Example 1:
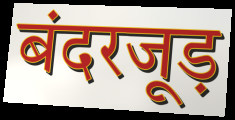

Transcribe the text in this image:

बंदरजूड़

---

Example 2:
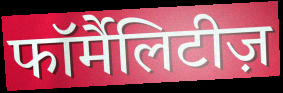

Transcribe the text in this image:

फॉर्मैलिटीज़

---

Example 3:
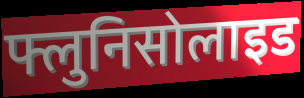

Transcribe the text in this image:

फ्लुनिसोलाइड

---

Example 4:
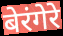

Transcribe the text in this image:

बेरंगेरे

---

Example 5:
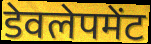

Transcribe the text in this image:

डेवलेपमेंट